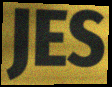
JES